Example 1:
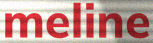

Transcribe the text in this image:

meline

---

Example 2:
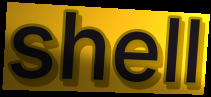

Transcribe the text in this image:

shell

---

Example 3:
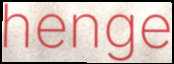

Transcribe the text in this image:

henge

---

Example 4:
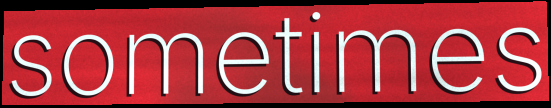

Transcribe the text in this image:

sometimes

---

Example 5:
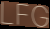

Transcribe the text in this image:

LFG